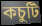
কচুটি